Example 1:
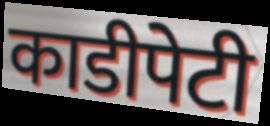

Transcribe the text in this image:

काडीपेटी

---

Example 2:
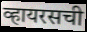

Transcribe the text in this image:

व्हायरसची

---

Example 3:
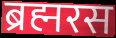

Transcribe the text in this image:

ब्रह्मरस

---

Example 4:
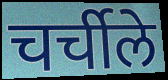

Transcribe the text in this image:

चर्चीले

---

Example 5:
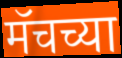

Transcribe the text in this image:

मॅचच्या